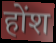
होंश